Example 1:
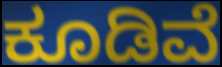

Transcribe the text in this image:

ಕೂಡಿವೆ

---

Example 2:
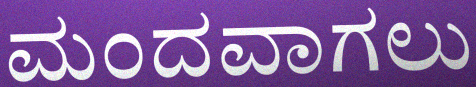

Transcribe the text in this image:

ಮಂದವಾಗಲು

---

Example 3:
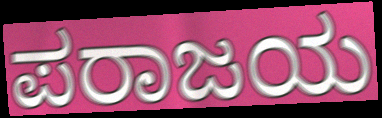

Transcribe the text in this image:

ಪರಾಜಯ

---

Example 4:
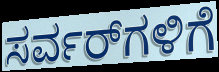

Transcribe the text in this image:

ಸರ್ವರ್‌ಗಳಿಗೆ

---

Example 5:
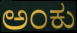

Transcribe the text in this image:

ಅಂಕು